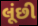
લૂંછી